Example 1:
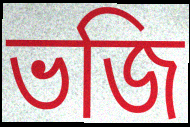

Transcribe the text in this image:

ভজি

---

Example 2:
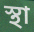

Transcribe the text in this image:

স্থা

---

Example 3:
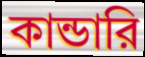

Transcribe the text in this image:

কান্ডারি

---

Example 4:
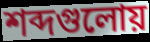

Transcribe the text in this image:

শব্দগুলোয়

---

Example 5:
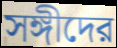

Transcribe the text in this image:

সঙ্গীদের